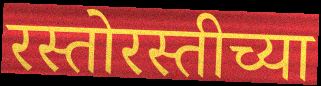
रस्तोरस्तीच्या